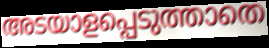
അടയാളപ്പെടുത്താതെ